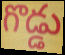
గొడ్డు